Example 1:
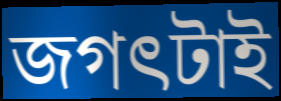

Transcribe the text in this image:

জগৎটাই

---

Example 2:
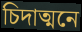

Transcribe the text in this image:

চিদাত্মনে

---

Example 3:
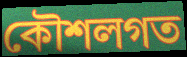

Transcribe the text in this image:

কৌশলগত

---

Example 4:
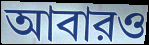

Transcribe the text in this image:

আবারও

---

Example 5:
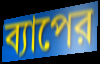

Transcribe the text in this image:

ব্যাপের